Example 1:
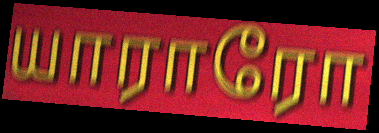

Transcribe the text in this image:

யாராரோ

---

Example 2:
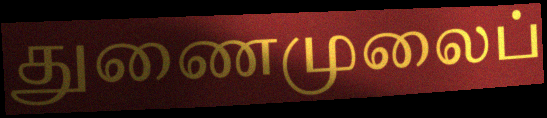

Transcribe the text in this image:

துணைமுலைப்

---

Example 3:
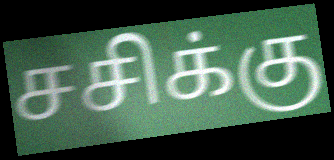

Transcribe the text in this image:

சசிக்கு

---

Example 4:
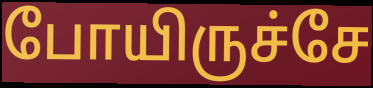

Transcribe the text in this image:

போயிருச்சே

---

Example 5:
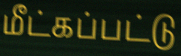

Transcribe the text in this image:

மீட்கப்பட்டு